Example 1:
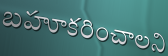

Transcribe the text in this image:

బహూకరించాలని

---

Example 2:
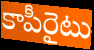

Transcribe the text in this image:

కాపీరైటు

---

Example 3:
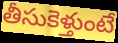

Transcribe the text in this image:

తీసుకెళ్తుంటే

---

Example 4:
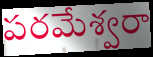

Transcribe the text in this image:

పరమేశ్వరా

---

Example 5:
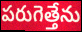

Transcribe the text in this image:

పరుగెత్తేను